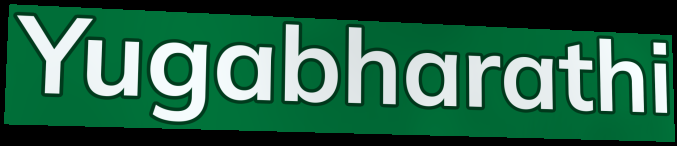
Yugabharathi